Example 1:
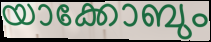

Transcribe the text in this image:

യാക്കോബും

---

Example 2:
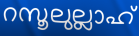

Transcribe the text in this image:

റസൂലുല്ലാഹ്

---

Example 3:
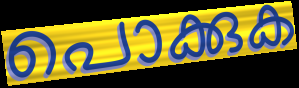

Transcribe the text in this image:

പൊക്കുക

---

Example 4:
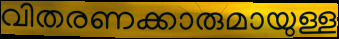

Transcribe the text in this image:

വിതരണക്കാരുമായുള്ള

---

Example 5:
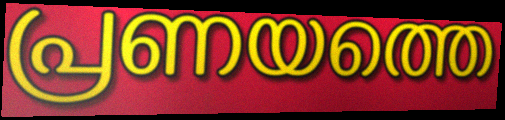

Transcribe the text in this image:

പ്രണയത്തെ